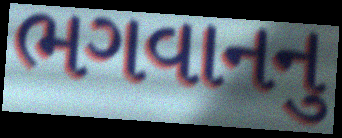
ભગવાનનુ